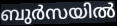
ബുർസയിൽ